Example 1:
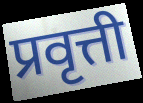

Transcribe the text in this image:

प्रवृत्ती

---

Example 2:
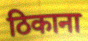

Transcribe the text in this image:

ठिकाना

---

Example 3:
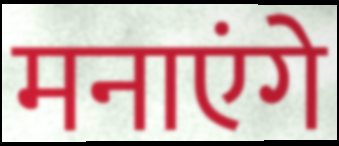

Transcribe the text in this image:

मनाएंगे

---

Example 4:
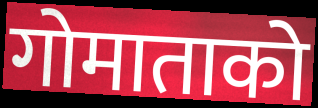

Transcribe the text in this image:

गोमाताको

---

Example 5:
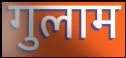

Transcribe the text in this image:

गुलाम